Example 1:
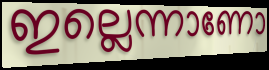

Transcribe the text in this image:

ഇല്ലെന്നാണോ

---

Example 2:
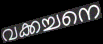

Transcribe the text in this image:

വക്കച്ചനെ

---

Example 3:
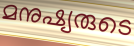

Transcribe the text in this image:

മനുഷ്യരുടെ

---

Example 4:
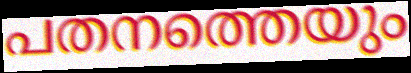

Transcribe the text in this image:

പതനത്തെയും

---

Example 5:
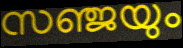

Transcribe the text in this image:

സഞ്ജയും